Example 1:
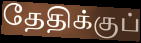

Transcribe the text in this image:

தேதிக்குப்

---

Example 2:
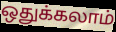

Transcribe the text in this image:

ஒதுக்கலாம்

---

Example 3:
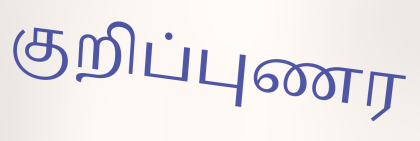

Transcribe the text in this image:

குறிப்புணர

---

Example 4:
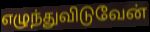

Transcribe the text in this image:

எழுந்துவிடுவேன்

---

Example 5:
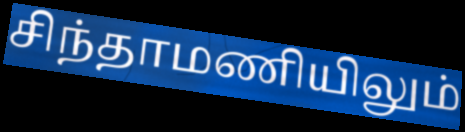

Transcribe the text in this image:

சிந்தாமணியிலும்